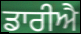
ਡਾਰੀਐ